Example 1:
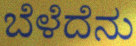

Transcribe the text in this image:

ಬೆಳೆದೆನು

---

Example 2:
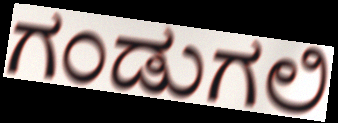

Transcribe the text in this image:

ಗಂಡುಗಲಿ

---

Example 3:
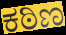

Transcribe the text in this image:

ಕಠಿಣ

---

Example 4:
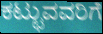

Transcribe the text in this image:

ಕಟ್ಟುವವರಿಗೆ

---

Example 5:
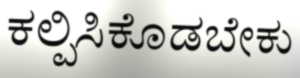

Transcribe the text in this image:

ಕಲ್ಪಿಸಿಕೊಡಬೇಕು